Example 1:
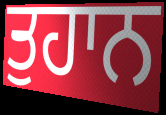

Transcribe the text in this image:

ਤੁਹਾਨ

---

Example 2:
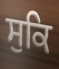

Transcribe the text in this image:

ਸੁਕਿ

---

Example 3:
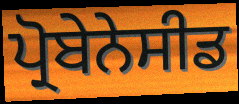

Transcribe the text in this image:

ਪ੍ਰੋਬੇਨੇਸੀਡ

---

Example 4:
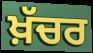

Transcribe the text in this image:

ਖ਼ੱਚਰ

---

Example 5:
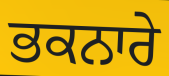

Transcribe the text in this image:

ਭਕਨਾਰੇ